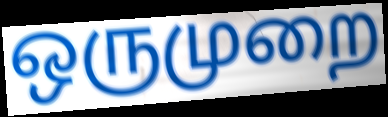
ஒருமுறை